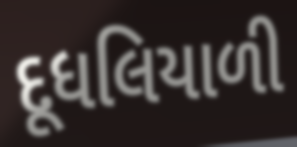
દૂધલિયાળી